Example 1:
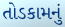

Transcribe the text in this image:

તોડકામનું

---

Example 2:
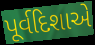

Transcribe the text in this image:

પૂર્વદિશાએ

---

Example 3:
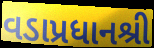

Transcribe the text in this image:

વડાપ્રધાનશ્રી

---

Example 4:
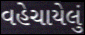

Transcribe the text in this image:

વહેચાયેલું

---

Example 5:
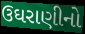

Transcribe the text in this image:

ઉઘરાણીનો